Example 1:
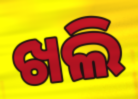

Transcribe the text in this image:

ଖଲି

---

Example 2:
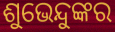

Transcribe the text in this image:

ଶୁଭେନ୍ଦୁଙ୍କର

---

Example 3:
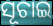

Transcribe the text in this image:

ସୂଚାଇ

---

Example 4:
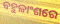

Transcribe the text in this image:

ବହୁଳାଂଶରେ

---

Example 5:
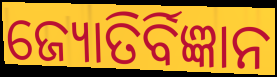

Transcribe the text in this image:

ଜ୍ୟୋତିର୍ବିଜ୍ଞାନ